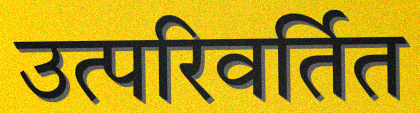
उत्परिवर्तित